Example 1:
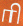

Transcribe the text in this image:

ரி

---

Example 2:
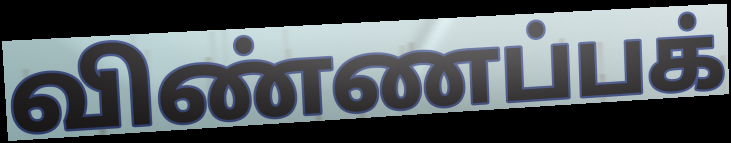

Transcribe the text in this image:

விண்ணப்பக்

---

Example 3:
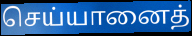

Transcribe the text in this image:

செய்யானைத்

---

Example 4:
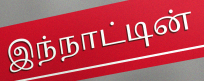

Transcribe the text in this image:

இந்நாட்டின்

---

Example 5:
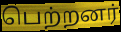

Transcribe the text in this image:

பெற்றனர்